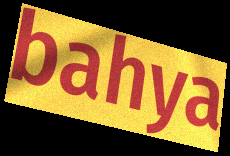
bahya